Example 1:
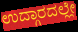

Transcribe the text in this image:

ಉದ್ಗಾರದಲ್ಲೇ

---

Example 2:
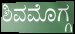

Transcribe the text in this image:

ಶಿವಮೊಗ್ಗ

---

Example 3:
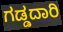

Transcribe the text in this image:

ಗಡ್ಡದಾರಿ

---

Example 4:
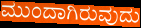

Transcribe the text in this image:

ಮುಂದಾಗಿರುವುದು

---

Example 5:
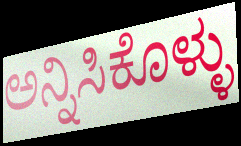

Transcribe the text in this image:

ಅನ್ನಿಸಿಕೊಳ್ಳು